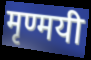
मृण्मयी